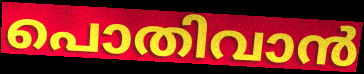
പൊതിവാൻ